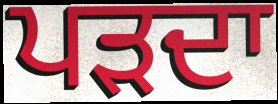
ਪੜਦਾ